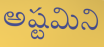
అష్టమిని